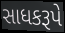
સાધકરૂપે